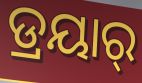
ଡ୍ରୟାର୍